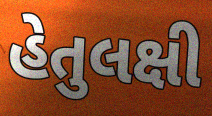
હેતુલક્ષી